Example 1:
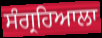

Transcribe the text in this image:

ਸੰਗ੍ਰਹਿਆਲਾ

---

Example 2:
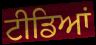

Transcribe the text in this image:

ਟੀਡਿਆਂ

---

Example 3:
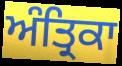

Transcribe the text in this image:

ਅੰਤ੍ਰਿਕਾ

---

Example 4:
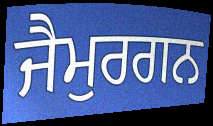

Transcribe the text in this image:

ਜੈਮੁਰਗਨ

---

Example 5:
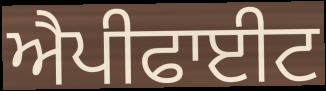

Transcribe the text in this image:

ਐਪੀਫਾਈਟ